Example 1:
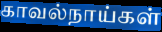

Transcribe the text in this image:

காவல்நாய்கள்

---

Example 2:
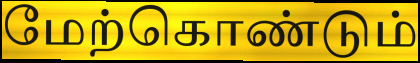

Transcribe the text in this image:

மேற்கொண்டும்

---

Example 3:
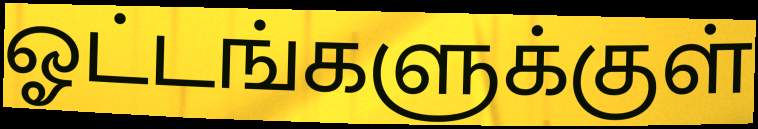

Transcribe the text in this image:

ஓட்டங்களுக்குள்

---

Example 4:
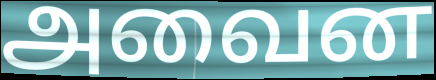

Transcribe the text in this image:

அவைன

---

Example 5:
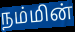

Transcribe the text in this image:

நம்மின்